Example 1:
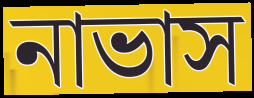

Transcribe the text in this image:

নাভাস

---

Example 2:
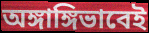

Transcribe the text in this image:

অঙ্গাঙ্গিভাবেই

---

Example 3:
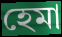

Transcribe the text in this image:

হেমা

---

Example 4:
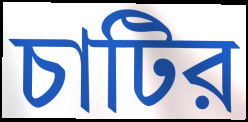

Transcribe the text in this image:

চাটির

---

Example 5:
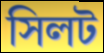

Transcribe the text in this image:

সিলট